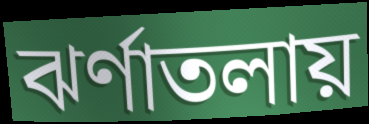
ঝর্ণাতলায়